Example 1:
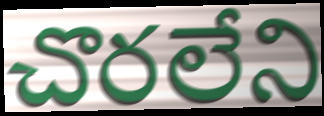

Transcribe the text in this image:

చొరలేని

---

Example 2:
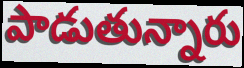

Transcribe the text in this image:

పాడుతున్నారు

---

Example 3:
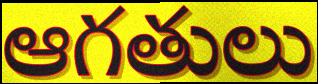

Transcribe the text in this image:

ఆగతులు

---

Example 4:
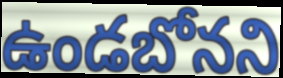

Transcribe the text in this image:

ఉండబోనని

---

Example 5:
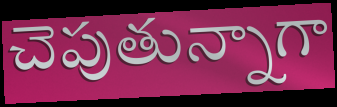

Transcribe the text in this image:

చెపుతున్నాగా